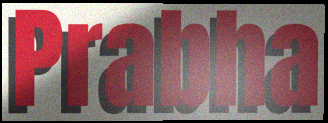
Prabha